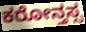
ಕರೋನ್ತಸ್ಸ